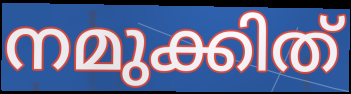
നമുക്കിത്